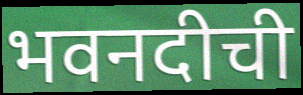
भवनदीची